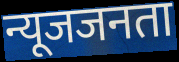
न्यूजजनता